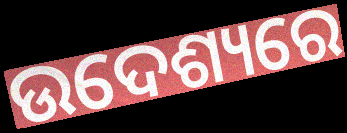
ଉଦେଶ୍ୟରେ